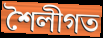
শৈলীগত